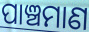
ପାଞ୍ଚମାଣ